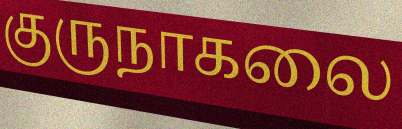
குருநாகலை